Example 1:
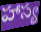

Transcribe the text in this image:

హాస్య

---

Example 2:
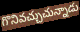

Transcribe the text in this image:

గొనివచ్చుచున్నాడు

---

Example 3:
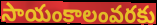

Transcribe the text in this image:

సాయంకాలంవరకు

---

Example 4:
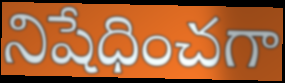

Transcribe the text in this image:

నిషేధించగా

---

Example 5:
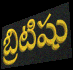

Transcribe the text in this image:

బ్రిటిషు